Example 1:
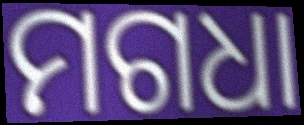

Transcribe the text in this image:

ମଗଧା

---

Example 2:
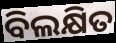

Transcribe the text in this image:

ବିଲକ୍ଷିତ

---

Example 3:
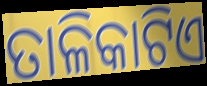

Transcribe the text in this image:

ତାଳିକାଟିଏ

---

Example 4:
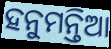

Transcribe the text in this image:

ହନୁମନ୍ତିଆ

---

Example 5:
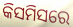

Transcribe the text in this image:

କିସମିସରେ